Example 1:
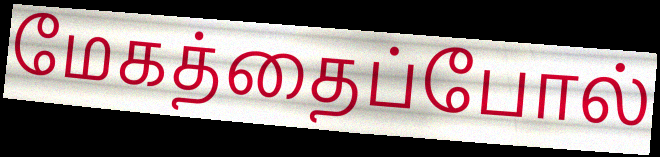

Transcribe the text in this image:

மேகத்தைப்போல்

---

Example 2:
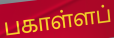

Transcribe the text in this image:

பகாள்ளப்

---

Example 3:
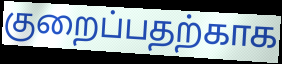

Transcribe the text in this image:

குறைப்பதற்காக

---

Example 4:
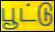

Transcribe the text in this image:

பூட்டு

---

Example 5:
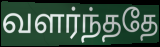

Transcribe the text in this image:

வளர்ந்ததே